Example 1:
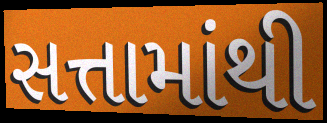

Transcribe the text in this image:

સત્તામાંથી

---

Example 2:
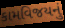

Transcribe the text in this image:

કામવિજયનું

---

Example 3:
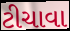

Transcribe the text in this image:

ટીચાવા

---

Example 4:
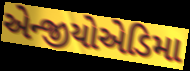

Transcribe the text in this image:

એન્જીયોએડિમા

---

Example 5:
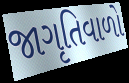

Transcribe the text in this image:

જાગૃતિવાળો